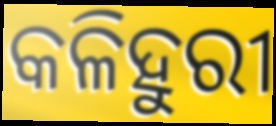
କଳିହୁରୀ